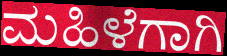
ಮಹಿಳೆಗಾಗಿ